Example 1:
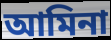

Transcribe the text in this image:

আমিনা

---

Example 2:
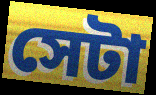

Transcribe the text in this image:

সেটা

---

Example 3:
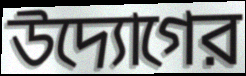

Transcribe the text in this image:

উদ্যোগের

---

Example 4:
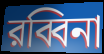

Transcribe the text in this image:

রব্বিনা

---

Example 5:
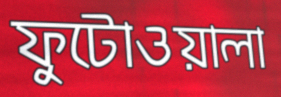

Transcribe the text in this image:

ফুটোওয়ালা